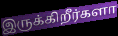
இருக்கிறீர்களா